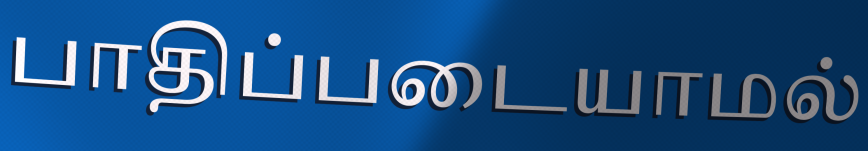
பாதிப்படையாமல்